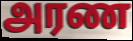
அரண